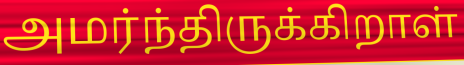
அமர்ந்திருக்கிறாள்